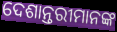
ଦେଶାନ୍ତରୀମାନଙ୍କ